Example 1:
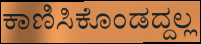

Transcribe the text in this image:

ಕಾಣಿಸಿಕೊಂಡದ್ದಲ್ಲ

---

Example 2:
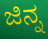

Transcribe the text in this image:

ಜಿನ್ನ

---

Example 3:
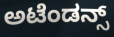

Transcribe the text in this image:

ಅಟೆಂಡನ್ಸ್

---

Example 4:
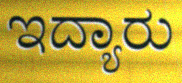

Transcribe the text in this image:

ಇದ್ಯಾರು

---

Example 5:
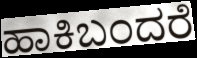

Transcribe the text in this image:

ಹಾಕಿಬಂದರೆ